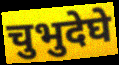
चुभुदेघे